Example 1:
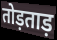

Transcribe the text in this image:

तोड़ताड़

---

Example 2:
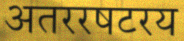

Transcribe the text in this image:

अतररषटरय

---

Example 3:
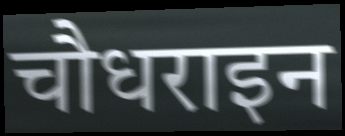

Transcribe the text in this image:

चौधराइन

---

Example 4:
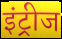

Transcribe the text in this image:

इंट्रीज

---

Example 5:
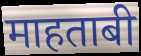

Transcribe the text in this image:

माहताबी